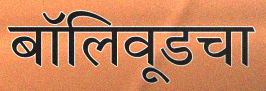
बॉलिवूडचा